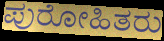
ಪುರೋಹಿತರು